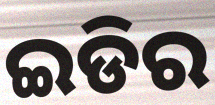
ଇଡିର